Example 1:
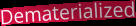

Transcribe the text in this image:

Dematerialized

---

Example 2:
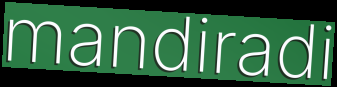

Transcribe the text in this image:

mandiradi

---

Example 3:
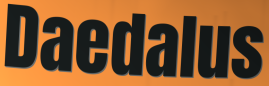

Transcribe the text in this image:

Daedalus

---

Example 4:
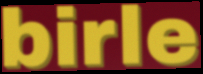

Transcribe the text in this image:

birle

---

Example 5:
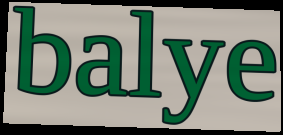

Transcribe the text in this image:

balye